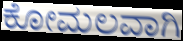
ಕೋಮಲವಾಗಿ